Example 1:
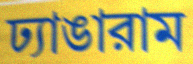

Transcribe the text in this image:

ঢ্যাঙারাম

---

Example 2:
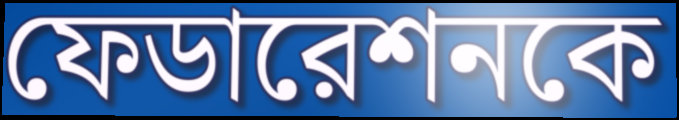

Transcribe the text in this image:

ফেডারেশনকে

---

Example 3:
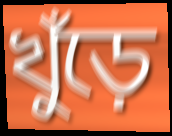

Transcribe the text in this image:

খুঁড়ে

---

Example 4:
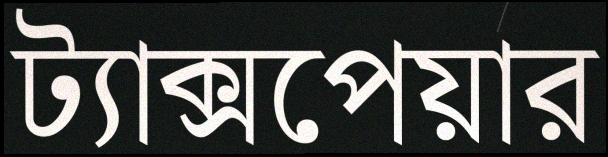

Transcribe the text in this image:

ট্যাক্সপেয়ার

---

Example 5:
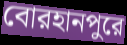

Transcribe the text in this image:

বোরহানপুরে